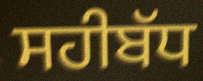
ਸਹੀਬੱਧ